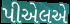
પીએલએ